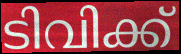
ടിവിക്ക്